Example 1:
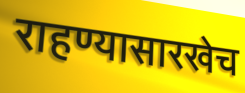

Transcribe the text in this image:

राहण्यासारखेच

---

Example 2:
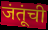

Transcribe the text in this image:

जंतूंची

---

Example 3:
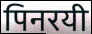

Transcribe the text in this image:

पिनरयी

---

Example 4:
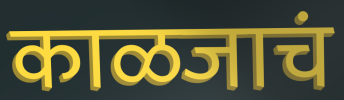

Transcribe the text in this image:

काळजाचं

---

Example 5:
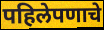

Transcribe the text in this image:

पहिलेपणाचे